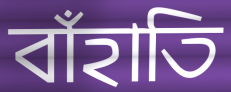
বাঁহাতি